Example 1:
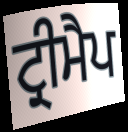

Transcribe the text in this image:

ਟ੍ਰੀਮੈਪ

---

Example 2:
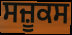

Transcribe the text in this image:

ਸਜ਼ੂਕਸ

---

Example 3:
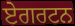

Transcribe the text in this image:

ਏਗਰਟਨ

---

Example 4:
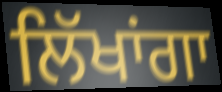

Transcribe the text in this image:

ਲਿੱਖਾਂਗਾ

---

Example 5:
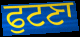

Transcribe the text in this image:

ਫੁਟਣਾ